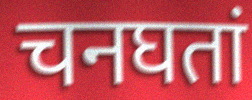
चनघतां